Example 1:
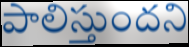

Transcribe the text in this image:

పాలిస్తుందని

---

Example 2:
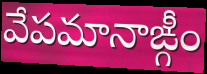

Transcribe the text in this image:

వేపమానాఙ్గీం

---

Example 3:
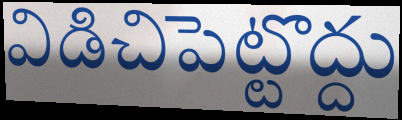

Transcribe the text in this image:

విడిచిపెట్టొద్దు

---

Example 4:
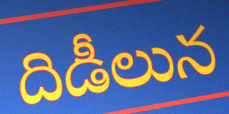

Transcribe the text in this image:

దిడీలున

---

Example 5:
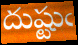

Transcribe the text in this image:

దుష్టుఁ